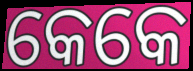
କେକେ